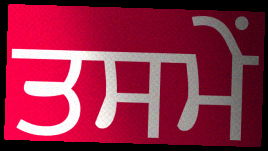
ਤਸਮੇਂ